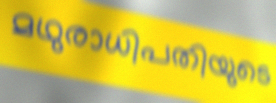
മഥുരാധിപതിയുടെ